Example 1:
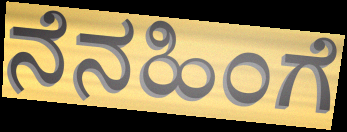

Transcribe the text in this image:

ನೆನಹಿಂಗೆ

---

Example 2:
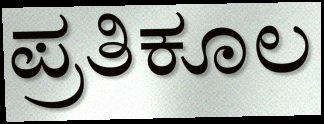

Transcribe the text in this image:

ಪ್ರತಿಕೂಲ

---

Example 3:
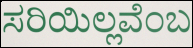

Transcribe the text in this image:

ಸರಿಯಿಲ್ಲವೆಂಬ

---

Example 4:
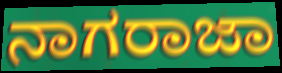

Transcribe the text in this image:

ನಾಗರಾಜಾ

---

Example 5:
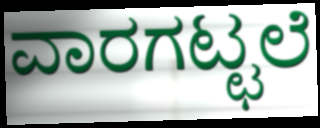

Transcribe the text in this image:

ವಾರಗಟ್ಟಲೆ